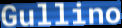
Gullino